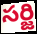
సర్జి